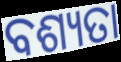
ବଶ୍ୟତା